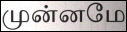
முன்னமே